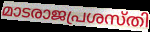
മാടരാജപ്രശസ്തി